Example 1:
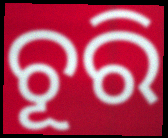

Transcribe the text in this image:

ଚୂରି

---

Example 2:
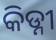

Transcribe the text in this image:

କିଡ୍ନୀ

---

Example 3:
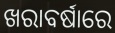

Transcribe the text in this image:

ଖରାବର୍ଷାରେ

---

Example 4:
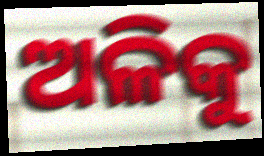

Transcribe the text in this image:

ଅଳିକୁ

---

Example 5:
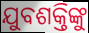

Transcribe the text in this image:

ଯୁବଶକ୍ତିଙ୍କୁ